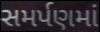
સમર્પણમાં